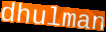
dhulman